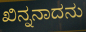
ಖಿನ್ನನಾದನು